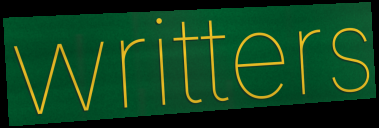
writters